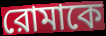
রোমাকে